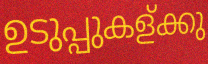
ഉടുപ്പുകള്ക്കു